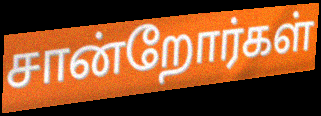
சான்றோர்கள்